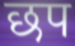
छप